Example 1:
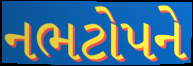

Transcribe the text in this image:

નભટોપને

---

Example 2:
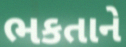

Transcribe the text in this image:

ભકતાને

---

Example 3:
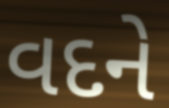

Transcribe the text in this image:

વદને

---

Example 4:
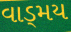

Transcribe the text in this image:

વાડ્મય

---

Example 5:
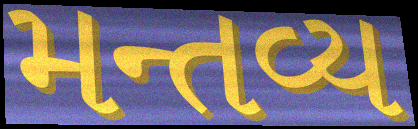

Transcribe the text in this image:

મન્તવ્ય